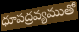
ధూపద్రవ్యముతో